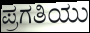
ಪ್ರಗತಿಯು